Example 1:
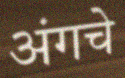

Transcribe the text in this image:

अंगचे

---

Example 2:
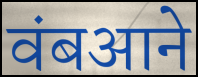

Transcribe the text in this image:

वंबआने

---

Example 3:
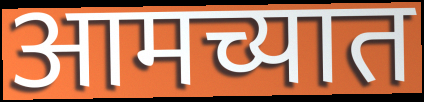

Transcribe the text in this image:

आमच्यात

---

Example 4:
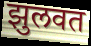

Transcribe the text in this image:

झुलवत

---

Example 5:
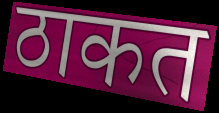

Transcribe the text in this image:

ठाकत